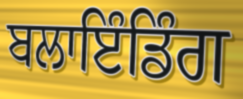
ਬਲਾਇੰਡਿੰਗ